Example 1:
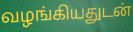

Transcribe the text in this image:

வழங்கியதுடன்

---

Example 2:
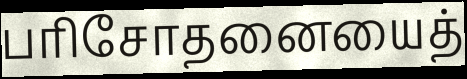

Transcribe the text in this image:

பரிசோதனையைத்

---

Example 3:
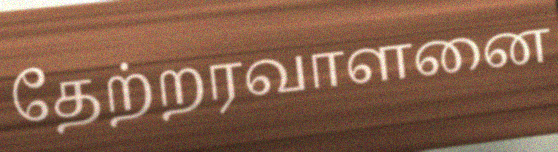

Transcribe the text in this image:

தேற்றரவாளனை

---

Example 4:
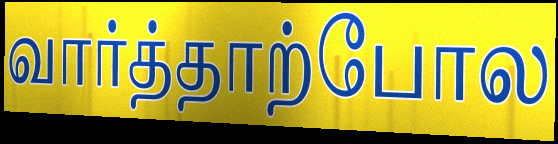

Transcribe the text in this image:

வார்த்தாற்போல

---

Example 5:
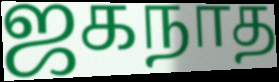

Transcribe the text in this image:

ஜகநாத